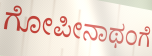
ಗೋಪೀನಾಥಂಗೆ